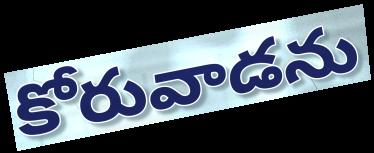
కోరువాడను